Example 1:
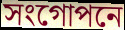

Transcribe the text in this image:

সংগোপনে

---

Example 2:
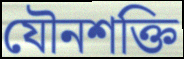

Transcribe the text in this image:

যৌনশক্তি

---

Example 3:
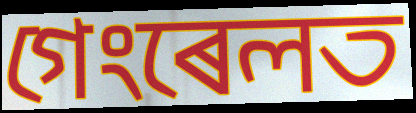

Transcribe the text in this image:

গেংৰেলত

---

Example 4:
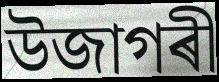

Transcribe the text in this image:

উজাগৰী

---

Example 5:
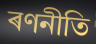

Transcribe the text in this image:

ৰণনীতি